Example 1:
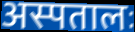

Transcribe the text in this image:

अस्पतालः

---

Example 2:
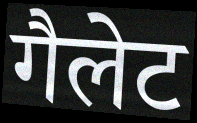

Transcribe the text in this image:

गैलेट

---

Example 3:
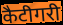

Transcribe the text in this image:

कैटीगरी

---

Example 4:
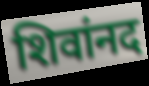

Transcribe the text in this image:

शिवांनद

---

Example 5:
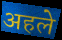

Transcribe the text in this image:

अहले